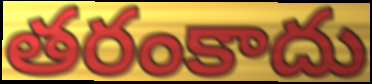
తరంకాదు